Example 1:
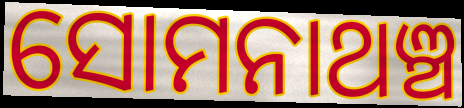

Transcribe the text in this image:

ସୋମନାଥଞ୍ଚ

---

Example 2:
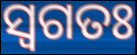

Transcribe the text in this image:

ସ୍ଵଗତଃ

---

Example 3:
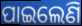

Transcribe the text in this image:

ପାଇଲେଣି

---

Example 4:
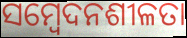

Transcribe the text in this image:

ସମ୍ଵେଦନଶୀଳତା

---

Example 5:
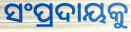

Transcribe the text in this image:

ସଂପ୍ରଦାୟକୁ